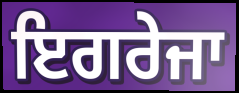
ਇਗਰੇਜਾ